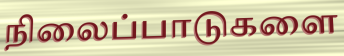
நிலைப்பாடுகளை